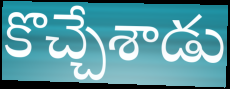
కొచ్చేశాడు